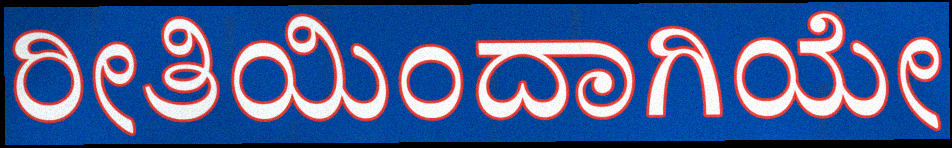
ರೀತಿಯಿಂದಾಗಿಯೇ